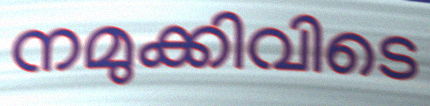
നമുക്കിവിടെ